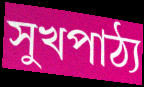
সুখপাঠ্য